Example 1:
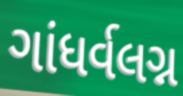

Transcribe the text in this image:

ગાંધર્વલગ્ન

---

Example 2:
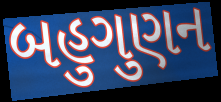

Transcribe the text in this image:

બહુગુણન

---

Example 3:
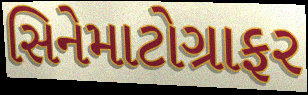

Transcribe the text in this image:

સિનેમાટોગ્રાફર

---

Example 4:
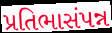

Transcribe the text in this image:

પ્રતિભાસંપન્ન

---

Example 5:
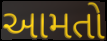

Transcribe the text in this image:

આમતો